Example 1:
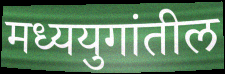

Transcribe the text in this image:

मध्ययुगांतील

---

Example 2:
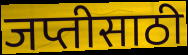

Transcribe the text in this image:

जप्तीसाठी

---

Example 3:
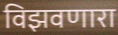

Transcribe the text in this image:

विझवणारा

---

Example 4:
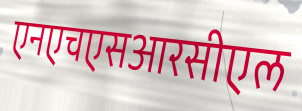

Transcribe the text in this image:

एनएचएसआरसीएल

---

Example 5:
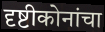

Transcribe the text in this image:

दृष्टीकोनांचा